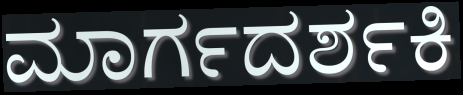
ಮಾರ್ಗದರ್ಶಕಿ